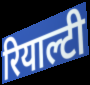
रियाल्टी